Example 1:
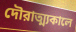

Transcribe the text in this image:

দৌরাত্ম্যকালে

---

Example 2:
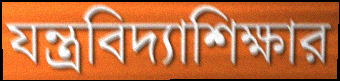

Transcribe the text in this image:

যন্ত্রবিদ্যাশিক্ষার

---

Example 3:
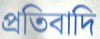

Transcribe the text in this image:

প্রতিবাদি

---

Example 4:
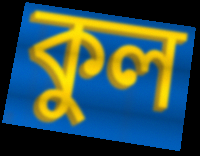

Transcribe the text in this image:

কুল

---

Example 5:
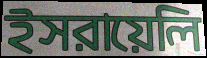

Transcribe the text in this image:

ইসরায়েলি